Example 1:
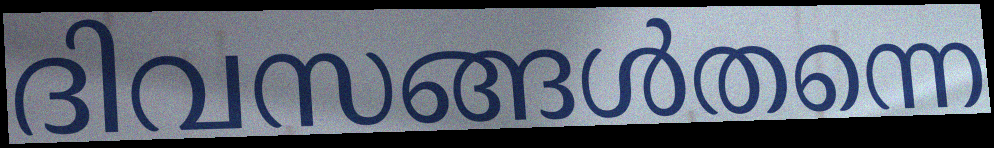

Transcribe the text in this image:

ദിവസങ്ങൾതന്നെ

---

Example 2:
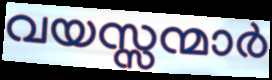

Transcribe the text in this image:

വയസ്സന്മാർ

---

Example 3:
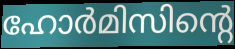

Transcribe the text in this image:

ഹോർമിസിന്റെ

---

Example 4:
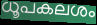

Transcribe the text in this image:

ധൂപകലശം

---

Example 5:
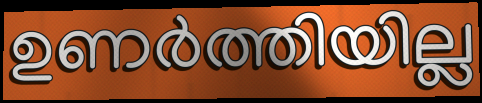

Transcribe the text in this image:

ഉണർത്തിയില്ല